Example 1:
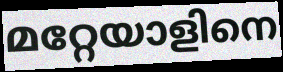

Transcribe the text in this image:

മറ്റേയാളിനെ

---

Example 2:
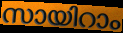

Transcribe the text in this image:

സായിറാം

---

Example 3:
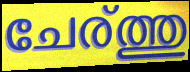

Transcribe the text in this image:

ചേര്ത്തു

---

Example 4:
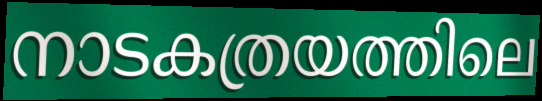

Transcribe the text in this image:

നാടകത്രയത്തിലെ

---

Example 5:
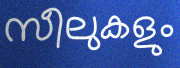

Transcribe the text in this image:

സീലുകളും